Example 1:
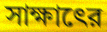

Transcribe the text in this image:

সাক্ষাৎের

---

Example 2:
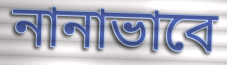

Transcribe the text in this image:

নানাভাবে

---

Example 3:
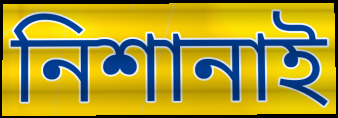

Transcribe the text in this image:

নিশানাই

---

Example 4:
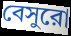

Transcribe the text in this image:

বেসুরো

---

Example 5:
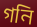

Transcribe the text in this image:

গনি